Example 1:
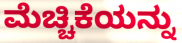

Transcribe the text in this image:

ಮೆಚ್ಚಿಕೆಯನ್ನು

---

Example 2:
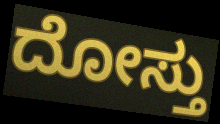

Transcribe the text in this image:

ದೋಸ್ತು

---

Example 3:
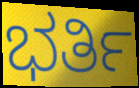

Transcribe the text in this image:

ಭರ್ತಿ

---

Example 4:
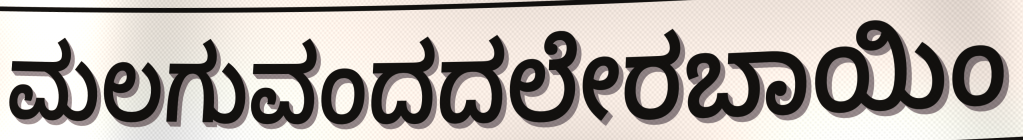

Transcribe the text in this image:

ಮಲಗುವಂದದಲೇರಬಾಯಿಂ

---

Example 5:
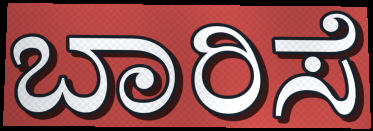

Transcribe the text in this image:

ಬಾರಿಸೆ